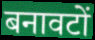
बनावटों